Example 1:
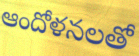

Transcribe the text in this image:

ఆందోళనలతో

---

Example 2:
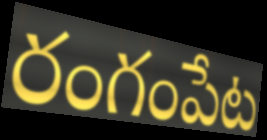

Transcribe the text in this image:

రంగంపేట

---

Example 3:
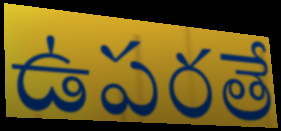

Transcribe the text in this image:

ఉపరతే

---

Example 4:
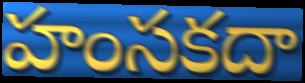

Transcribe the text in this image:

హంసకదా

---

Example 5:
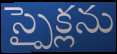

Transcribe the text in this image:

స్పైక్లను